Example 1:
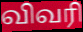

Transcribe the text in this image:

விவரி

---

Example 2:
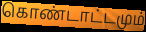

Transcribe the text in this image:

கொண்டாட்டமும்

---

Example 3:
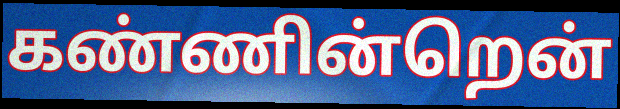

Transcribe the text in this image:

கண்ணின்றென்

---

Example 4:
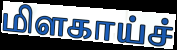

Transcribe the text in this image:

மிளகாய்ச்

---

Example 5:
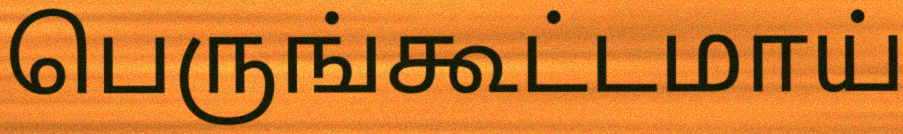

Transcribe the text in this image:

பெருங்கூட்டமாய்